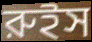
রুইস